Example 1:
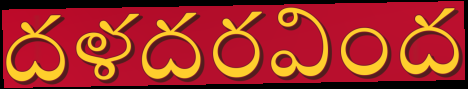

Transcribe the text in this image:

దళదరవింద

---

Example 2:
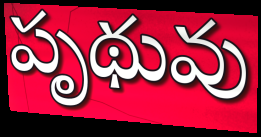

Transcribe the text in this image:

పృథువు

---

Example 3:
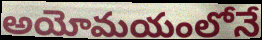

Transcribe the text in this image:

అయోమయంలోనే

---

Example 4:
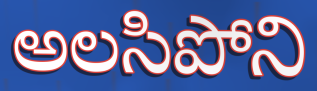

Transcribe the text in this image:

అలసిపోని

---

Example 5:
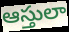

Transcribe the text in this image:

ఆస్తులా